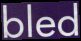
bled